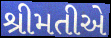
શ્રીમતીએ